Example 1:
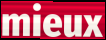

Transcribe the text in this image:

mieux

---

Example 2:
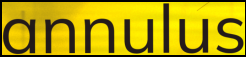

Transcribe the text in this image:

annulus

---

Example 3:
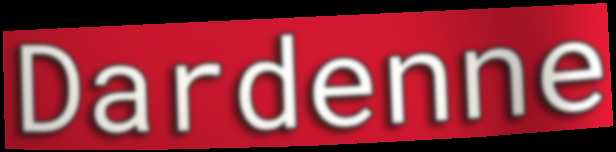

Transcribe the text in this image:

Dardenne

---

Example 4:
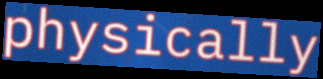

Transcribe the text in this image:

physically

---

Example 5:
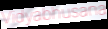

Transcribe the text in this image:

Vidyabhusana